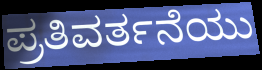
ಪ್ರತಿವರ್ತನೆಯು